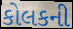
કોલકની